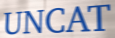
UNCAT